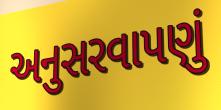
અનુસરવાપણું